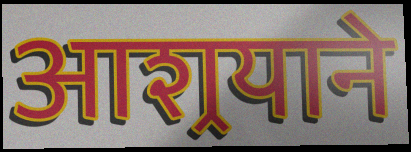
आश्रयाने